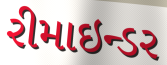
રીમાઇન્ડર